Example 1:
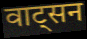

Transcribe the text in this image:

वाट्सन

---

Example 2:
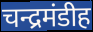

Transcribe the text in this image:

चन्द्रमंडीह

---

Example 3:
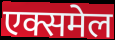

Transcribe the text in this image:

एक्समेल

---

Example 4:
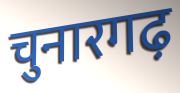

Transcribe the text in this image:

चुनारगढ़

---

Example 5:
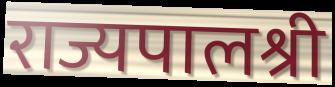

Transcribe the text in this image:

राज्यपालश्री